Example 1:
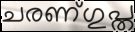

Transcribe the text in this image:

ചരണ്ഗുപ്ത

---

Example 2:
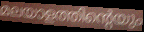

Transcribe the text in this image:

മലയാളത്തിന്റെയും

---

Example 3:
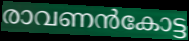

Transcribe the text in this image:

രാവണൻകോട്ട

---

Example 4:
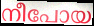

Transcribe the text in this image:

നീപോയ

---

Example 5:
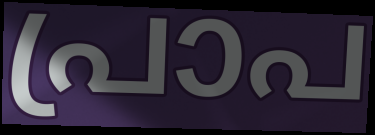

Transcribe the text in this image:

പ്രാപ